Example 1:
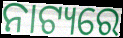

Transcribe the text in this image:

ନାଟ୍ୟରେ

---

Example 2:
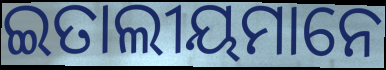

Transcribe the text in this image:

ଇତାଲୀୟମାନେ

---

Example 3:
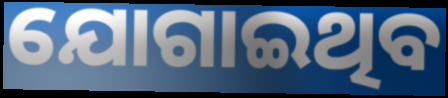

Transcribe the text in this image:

ଯୋଗାଇଥିବ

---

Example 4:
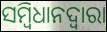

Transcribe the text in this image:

ସମ୍ବିଧାନଦ୍ବାରା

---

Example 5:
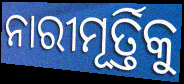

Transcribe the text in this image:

ନାରୀମୂର୍ତ୍ତିକୁ